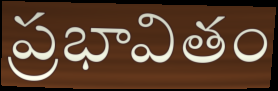
ప్రభావితం